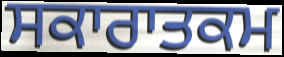
ਸਕਾਰਾਤਕਮ